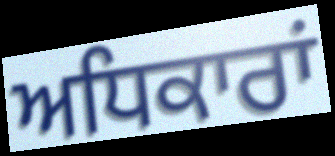
ਅਧਿਕਾਰਾਂ